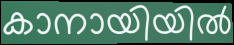
കാനായിയിൽ